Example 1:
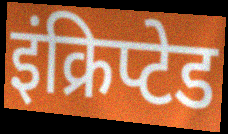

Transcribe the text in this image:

इंक्रिप्टेड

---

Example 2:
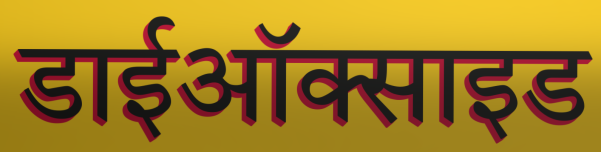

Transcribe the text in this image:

डाईऑक्साइड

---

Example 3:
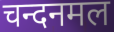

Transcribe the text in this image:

चन्दनमल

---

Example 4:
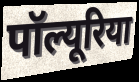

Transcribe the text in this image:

पॉल्यूरिया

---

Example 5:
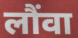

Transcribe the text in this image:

लौंवा